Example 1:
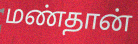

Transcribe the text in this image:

மண்தான்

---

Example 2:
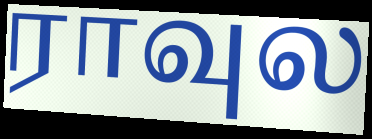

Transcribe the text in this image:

ராவுல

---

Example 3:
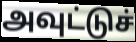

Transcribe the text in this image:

அவுட்டுச்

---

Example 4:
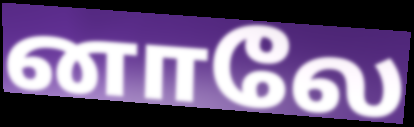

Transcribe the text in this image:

னாலே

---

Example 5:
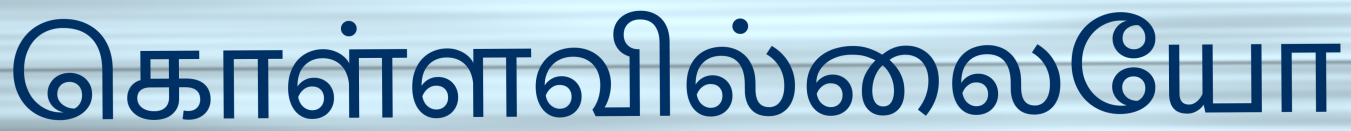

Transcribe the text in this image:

கொள்ளவில்லையோ